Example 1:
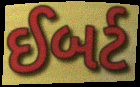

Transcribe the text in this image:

ઈબર્ટ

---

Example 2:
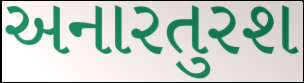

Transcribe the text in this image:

અનારતુરશ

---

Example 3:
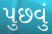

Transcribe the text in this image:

પુછવું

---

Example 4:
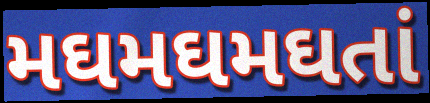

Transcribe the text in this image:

મઘમઘમઘતાં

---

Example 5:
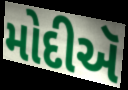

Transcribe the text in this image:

મોદીઍ